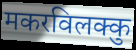
मकरविलक्कु